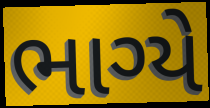
ભાગ્યે